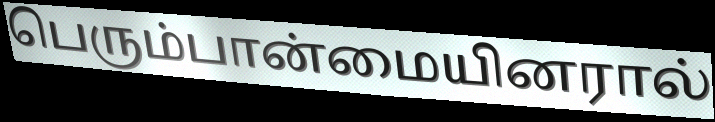
பெரும்பான்மையினரால்